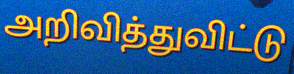
அறிவித்துவிட்டு